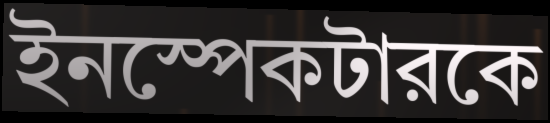
ইনস্পেকটারকে